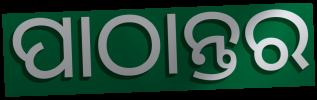
ପାଠାନ୍ତର